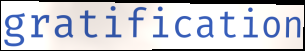
gratification